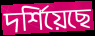
দর্শিয়েছে